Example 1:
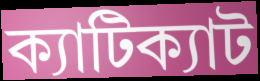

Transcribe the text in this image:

ক্যাটিক্যাট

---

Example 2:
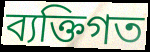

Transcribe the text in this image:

ব্যক্তিগত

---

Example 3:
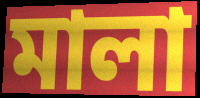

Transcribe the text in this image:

মালা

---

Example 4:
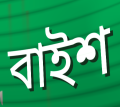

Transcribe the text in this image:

বাইশ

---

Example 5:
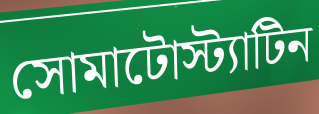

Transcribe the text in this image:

সোমাটোস্ট্যাটিন